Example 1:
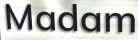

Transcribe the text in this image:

Madam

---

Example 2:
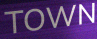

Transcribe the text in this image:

TOWN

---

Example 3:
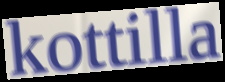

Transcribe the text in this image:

kottilla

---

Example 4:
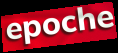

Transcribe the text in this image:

epoche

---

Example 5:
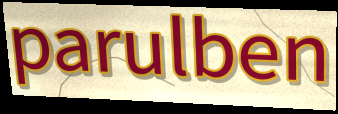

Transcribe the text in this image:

parulben